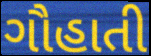
ગૌહાતી